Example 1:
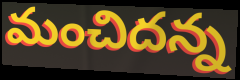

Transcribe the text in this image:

మంచిదన్న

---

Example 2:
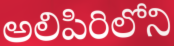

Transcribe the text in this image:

అలిపిరిలోని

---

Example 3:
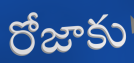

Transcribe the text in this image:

రోజాకు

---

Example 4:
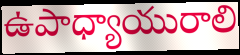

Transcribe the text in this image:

ఉపాధ్యాయురాలి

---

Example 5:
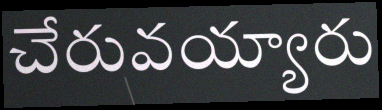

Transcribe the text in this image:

చేరువయ్యారు